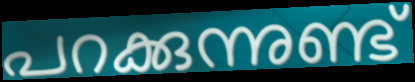
പറക്കുന്നുണ്ട്